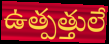
ఉత్పత్తులే